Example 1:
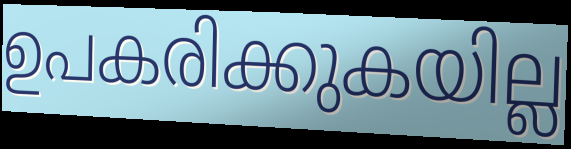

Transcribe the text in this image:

ഉപകരിക്കുകയില്ല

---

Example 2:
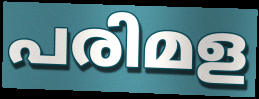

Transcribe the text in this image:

പരിമള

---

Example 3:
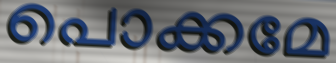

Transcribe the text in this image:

പൊക്കമേ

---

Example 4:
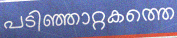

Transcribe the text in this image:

പടിഞ്ഞാറ്റകത്തെ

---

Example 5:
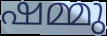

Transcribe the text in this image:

ഷമ്മു